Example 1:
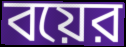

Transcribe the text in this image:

বয়ের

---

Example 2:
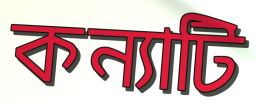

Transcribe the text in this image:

কন্যাটি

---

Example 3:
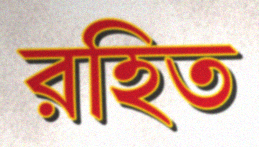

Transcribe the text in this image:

রহিত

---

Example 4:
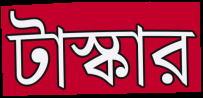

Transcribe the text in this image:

টাস্কার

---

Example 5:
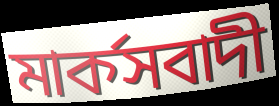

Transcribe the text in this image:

মার্কসবাদী